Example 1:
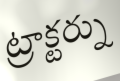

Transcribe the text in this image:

ట్రాక్టర్ను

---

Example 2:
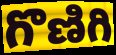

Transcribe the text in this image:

గొణిగి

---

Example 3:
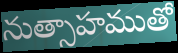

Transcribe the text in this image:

నుత్సాహముతో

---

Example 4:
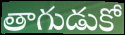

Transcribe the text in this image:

తాగుడుకో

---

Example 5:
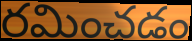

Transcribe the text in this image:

రమించడం